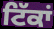
ਟਿੱਕਾਂ